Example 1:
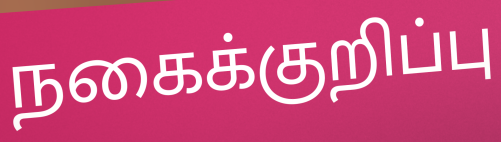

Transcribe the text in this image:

நகைக்குறிப்பு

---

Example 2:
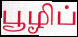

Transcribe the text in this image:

பூழிப்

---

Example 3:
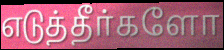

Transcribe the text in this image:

எடுத்தீர்களோ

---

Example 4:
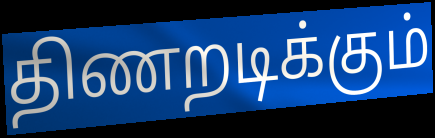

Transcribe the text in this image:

திணறடிக்கும்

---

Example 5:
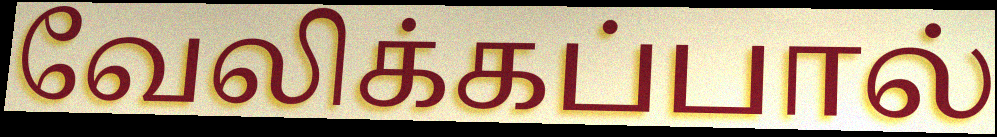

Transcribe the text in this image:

வேலிக்கப்பால்